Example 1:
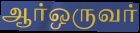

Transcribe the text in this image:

ஆர்ஒருவர்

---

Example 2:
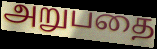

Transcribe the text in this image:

அறுபதை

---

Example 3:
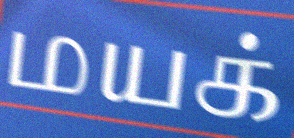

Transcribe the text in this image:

மயக்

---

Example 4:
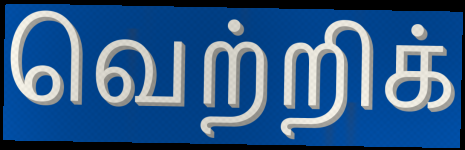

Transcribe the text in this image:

வெற்றிக்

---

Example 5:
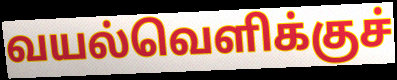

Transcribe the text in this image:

வயல்வெளிக்குச்